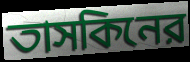
তাসকিনের